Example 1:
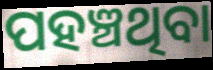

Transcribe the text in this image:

ପହଞ୍ଚଥିବା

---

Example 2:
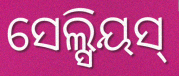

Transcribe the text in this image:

ସେଲ୍ସିୟସ୍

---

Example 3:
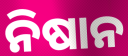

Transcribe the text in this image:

ନିଷାନ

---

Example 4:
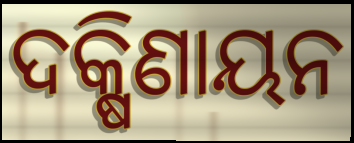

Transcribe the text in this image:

ଦକ୍ଷିଣାୟନ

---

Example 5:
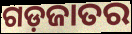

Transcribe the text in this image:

ଗଡ଼ଜାତର